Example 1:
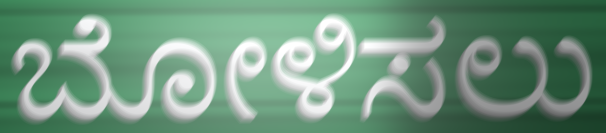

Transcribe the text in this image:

ಬೋಳಿಸಲು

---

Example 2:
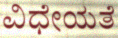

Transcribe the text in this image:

ವಿಧೇಯತೆ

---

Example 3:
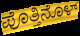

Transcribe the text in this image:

ಪೊತ್ತಿನೊಳ್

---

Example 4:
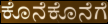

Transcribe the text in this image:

ಕೊನೆಕೊನೆಗೆ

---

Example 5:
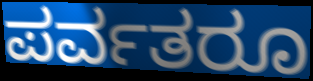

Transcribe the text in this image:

ಪರ್ವತರೂ